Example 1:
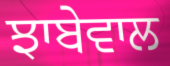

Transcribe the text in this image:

ਝਾਬੇਵਾਲ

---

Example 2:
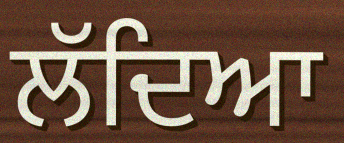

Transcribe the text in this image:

ਲੱਦਿਆ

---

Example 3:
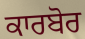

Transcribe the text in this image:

ਕਾਰਬੋਰ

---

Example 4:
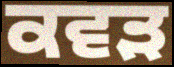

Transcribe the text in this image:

ਕਵੜ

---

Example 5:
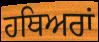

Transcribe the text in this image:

ਹਥਿਅਰਾਂ